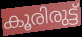
കൂരിരുട്ട്